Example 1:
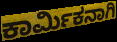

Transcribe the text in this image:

ಕಾರ್ಮಿಕನಾಗಿ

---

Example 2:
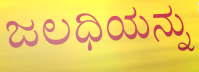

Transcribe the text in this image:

ಜಲಧಿಯನ್ನು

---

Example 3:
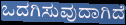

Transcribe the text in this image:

ಒದಗಿಸುವುದಾಗಿದೆ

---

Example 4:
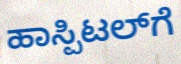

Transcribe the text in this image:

ಹಾಸ್ಪಿಟಲ್‌ಗೆ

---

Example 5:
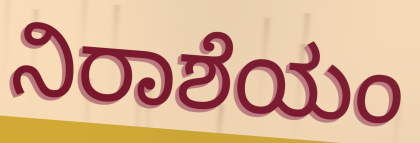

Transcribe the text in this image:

ನಿರಾಶೆಯಂ